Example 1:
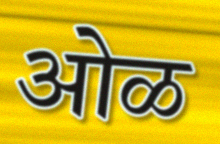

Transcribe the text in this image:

ओळ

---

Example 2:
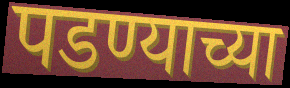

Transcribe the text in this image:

पडण्याच्या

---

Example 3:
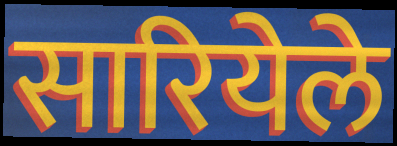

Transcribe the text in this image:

सारियेले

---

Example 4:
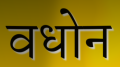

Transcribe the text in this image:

वधोन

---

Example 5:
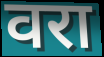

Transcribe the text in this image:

वरा